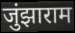
जुंझाराम